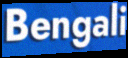
Bengali